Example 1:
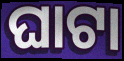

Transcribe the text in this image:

ଘାଟା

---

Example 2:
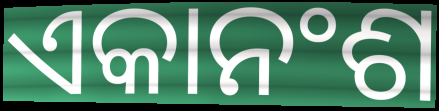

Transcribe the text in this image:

ଏକାନଂଶ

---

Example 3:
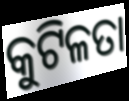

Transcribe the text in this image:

କୁଟିଳତା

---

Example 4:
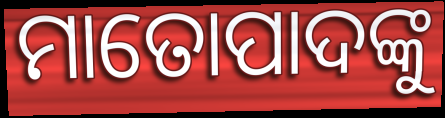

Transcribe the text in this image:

ମାତୋପାଦଙ୍କୁ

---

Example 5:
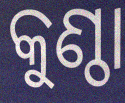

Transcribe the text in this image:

କୁଣ୍ଠା